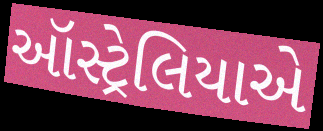
ઑસ્ટ્રેલિયાએ